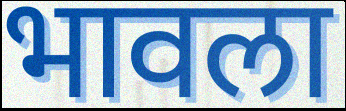
भावला